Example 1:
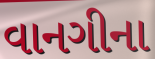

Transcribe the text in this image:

વાનગીના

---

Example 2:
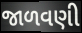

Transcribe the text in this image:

જાળવણી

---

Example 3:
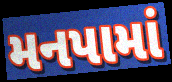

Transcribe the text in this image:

મનપામાં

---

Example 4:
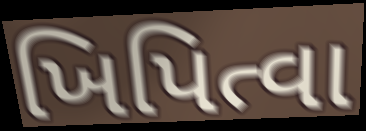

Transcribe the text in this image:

ખિપિત્વા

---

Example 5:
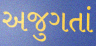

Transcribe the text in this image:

અજુગતાં